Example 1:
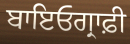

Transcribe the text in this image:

ਬਾਇਓਗ੍ਰਾਫ਼ੀ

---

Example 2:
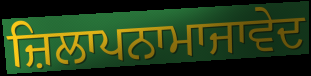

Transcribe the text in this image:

ਜ਼ਿਲਾਪਨਾਮਾਜਾਵੇਦ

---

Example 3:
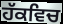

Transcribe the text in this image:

ਹੱਕਵਿਚ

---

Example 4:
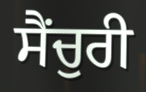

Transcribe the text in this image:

ਸੈਂਚੁਰੀ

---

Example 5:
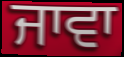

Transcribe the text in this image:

ਜਾਵਾ